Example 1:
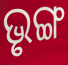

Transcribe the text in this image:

ଭୃଙ୍ଗ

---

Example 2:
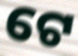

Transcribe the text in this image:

ଟେ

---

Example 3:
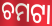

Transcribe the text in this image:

ଚମଟା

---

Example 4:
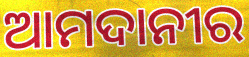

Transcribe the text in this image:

ଆମଦାନୀର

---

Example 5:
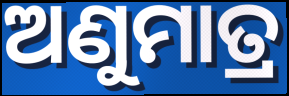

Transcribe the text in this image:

ଅଣୁମାତ୍ର